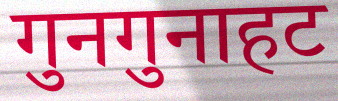
गुनगुनाहट